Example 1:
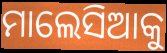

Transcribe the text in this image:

ମାଲେସିଆକୁ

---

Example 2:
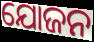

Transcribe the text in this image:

ଯୋଜନ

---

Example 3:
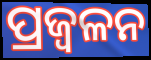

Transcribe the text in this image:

ପ୍ରଜ୍ବଳନ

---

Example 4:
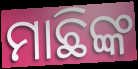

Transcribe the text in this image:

ମାଛିଙ୍କ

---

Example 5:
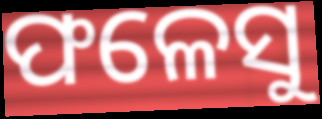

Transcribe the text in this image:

ଫଳେସୁ